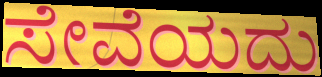
ಸೇವೆಯದು